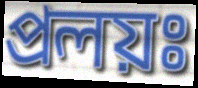
প্রলয়ঃ